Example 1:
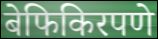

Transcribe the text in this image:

बेफिकिरपणे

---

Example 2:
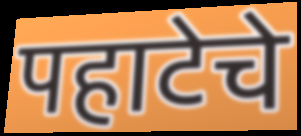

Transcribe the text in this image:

पहाटेचे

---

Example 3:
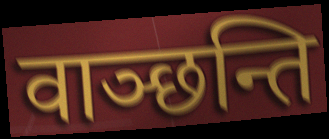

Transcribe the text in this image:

वाञ्छन्ति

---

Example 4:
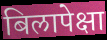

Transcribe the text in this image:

बिलापेक्षा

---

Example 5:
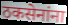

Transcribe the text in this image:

ठकसेनांना